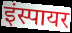
इंस्पायर